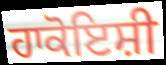
ਹਾਕੋਇਸ਼ੀ